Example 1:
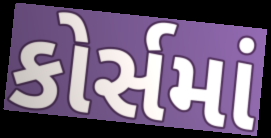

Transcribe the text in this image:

કોર્સમાં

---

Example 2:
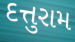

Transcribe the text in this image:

દત્તુરામ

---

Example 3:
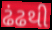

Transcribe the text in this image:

ઢંઢથી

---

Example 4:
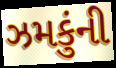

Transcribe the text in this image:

ઝમકુંની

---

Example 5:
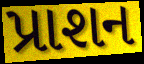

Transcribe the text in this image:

પ્રાશન